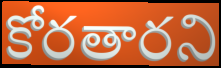
కోరతారని